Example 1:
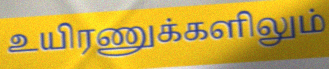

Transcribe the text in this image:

உயிரணுக்களிலும்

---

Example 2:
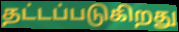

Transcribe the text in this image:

தட்டப்படுகிறது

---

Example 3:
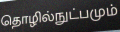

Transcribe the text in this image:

தொழில்நுட்பமும்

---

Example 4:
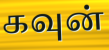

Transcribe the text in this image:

கவுன்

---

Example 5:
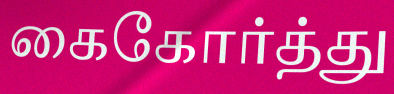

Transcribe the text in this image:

கைகோர்த்து